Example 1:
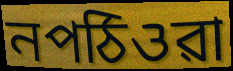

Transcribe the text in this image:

নপঠিওৱা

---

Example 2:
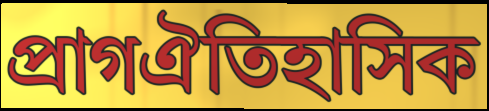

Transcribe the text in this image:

প্ৰাগঐতিহাসিক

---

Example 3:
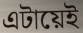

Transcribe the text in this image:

এটায়েই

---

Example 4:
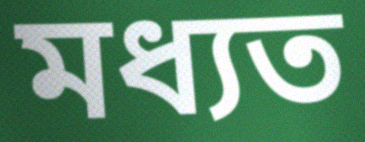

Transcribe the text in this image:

মধ্যত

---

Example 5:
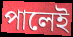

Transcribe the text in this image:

পালেই